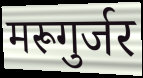
मरूगुर्जर